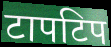
टापटिप